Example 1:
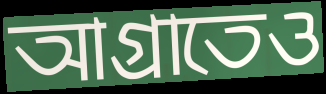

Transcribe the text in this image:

আগ্রাতেও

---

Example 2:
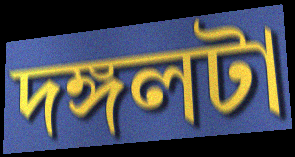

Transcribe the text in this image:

দঙ্গলটা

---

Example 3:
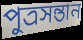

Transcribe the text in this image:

পুত্রসন্তান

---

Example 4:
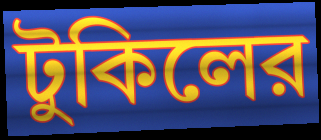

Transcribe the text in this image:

টুকিলের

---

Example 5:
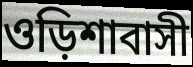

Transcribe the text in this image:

ওড়িশাবাসী